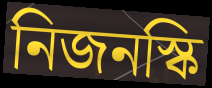
নিজনস্কি